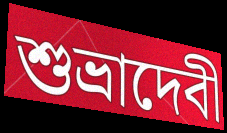
শুভ্রাদেবী